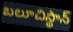
బలూచిస్థాన్